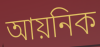
আয়নিক